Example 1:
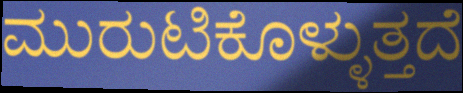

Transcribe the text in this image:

ಮುರುಟಿಕೊಳ್ಳುತ್ತದೆ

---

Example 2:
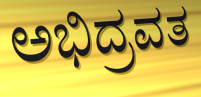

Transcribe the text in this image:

ಅಭಿದ್ರವತ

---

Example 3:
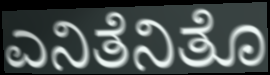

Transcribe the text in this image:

ಎನಿತೆನಿತೊ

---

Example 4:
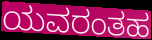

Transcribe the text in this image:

ಯವರಂತಹ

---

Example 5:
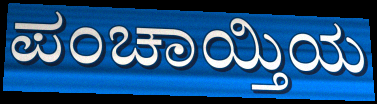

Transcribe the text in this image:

ಪಂಚಾಯ್ತಿಯ